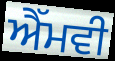
ਐੱਮਵੀ